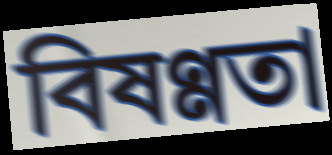
বিষণ্ণতা